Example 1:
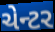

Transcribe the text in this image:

ચેન્ટર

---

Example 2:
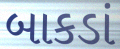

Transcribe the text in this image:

બાકડાં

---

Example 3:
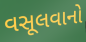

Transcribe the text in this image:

વસૂલવાનો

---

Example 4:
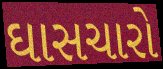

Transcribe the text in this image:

ઘાસચારો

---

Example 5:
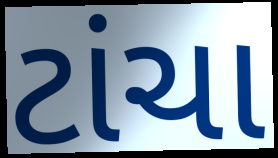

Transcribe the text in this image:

ટાંચા